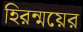
হিরন্ময়ের